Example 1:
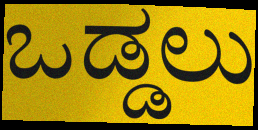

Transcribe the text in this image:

ಒಡ್ಡಲು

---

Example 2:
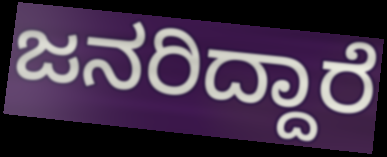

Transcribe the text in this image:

ಜನರಿದ್ದಾರೆ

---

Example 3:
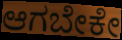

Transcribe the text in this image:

ಆಗಬೇಕೇ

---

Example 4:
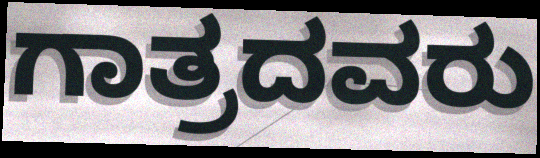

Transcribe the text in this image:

ಗಾತ್ರದವರು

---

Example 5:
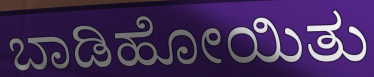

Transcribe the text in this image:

ಬಾಡಿಹೋಯಿತು